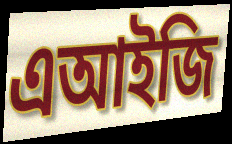
এআইজি